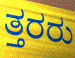
ತ್ತರರು